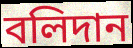
বলিদান